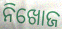
ନିଖୋଜ